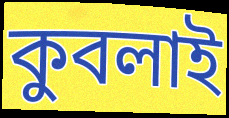
কুবলাই